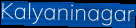
Kalyaninagar